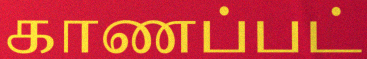
காணப்பட்